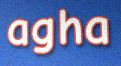
agha